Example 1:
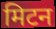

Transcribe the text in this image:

मिटन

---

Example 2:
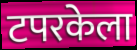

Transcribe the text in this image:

टपरकेला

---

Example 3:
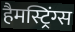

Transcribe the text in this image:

हैमस्ट्रिंग्स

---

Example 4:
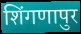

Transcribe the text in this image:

शिंगणापुर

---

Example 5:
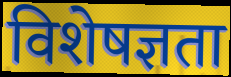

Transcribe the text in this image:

विशेषज्ञता